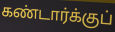
கண்டார்க்குப்